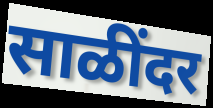
साळींदर